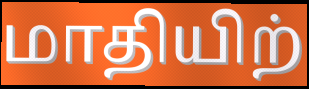
மாதியிற்